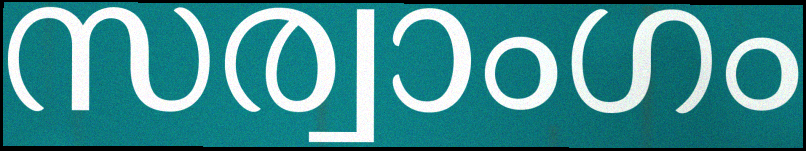
സര്വാംഗം